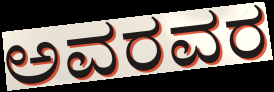
ಅವರವರ